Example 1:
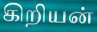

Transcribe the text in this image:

கிறியன்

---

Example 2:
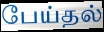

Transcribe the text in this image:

பேய்தல்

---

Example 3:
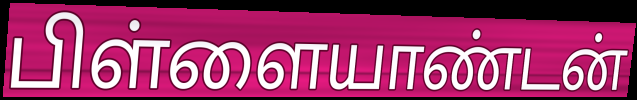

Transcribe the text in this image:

பிள்ளையாண்டன்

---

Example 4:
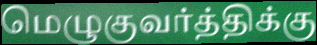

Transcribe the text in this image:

மெழுகுவர்த்திக்கு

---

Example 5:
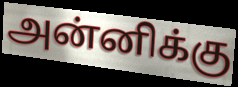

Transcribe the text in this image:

அன்னிக்கு